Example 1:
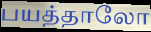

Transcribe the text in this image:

பயத்தாலோ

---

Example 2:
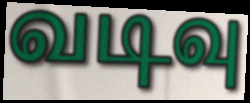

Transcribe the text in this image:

வடிவு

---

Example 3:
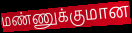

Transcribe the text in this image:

மண்ணுக்குமான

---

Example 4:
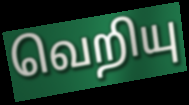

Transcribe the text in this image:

வெறியு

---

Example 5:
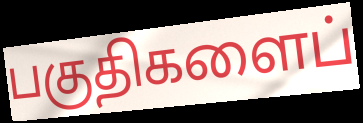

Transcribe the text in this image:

பகுதிகளைப்